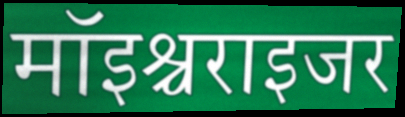
मॉइश्चराइजर